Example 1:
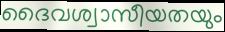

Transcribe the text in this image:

ദൈവശ്വാസീയതയും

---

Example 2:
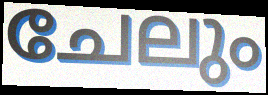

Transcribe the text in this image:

ചേലും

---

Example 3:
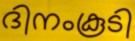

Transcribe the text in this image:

ദിനംകൂടി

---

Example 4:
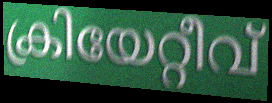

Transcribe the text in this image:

ക്രിയേറ്റീവ്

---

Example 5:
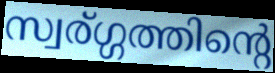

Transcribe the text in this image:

സ്വര്ഗ്ഗത്തിന്റെ